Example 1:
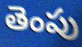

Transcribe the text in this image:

తెంపు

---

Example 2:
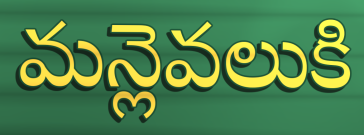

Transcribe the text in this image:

మన్లెవలుకి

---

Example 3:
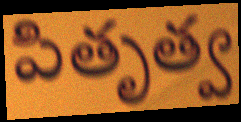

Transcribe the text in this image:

పితృత్వ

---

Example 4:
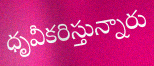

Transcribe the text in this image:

ధృవీకరిస్తున్నారు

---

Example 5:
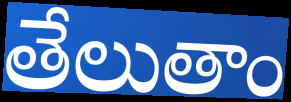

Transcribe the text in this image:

తేలుతాం